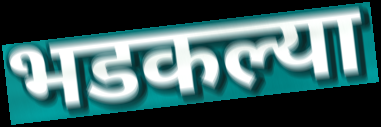
भडकल्या